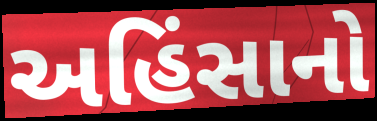
અહિંસાનો